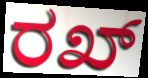
ರಖ್